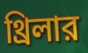
থ্রিলার